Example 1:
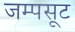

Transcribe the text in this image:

जम्पसूट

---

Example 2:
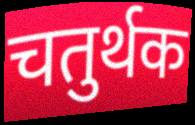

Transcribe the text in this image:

चतुर्थक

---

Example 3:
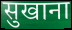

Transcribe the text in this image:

सुखाना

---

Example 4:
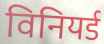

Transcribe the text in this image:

विनियर्ड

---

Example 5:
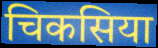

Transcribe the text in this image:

चिकसिया